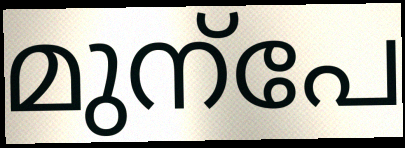
മുന്പേ